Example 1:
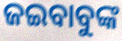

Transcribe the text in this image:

ଜଇବାବୁଙ୍କ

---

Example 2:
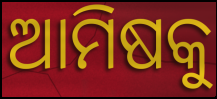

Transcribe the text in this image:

ଆମିଷକୁ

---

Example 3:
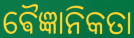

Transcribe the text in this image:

ଵୈଜ୍ଞାନିକତା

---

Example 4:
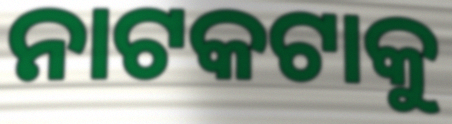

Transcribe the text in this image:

ନାଟକଟାକୁ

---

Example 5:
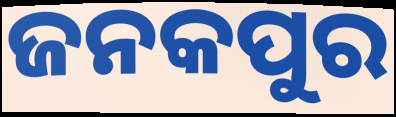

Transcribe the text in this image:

ଜନକପୁର